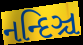
નન્દિઞ્ચ